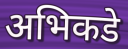
अभिकडे